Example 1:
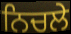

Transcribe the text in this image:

ਨਿਚਲੇ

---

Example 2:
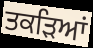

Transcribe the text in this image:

ਤਕੜਿਆਂ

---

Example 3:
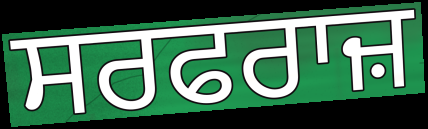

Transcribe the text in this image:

ਸਰਫਰਾਜ਼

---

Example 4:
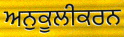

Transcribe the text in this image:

ਅਨੁਕੂਲੀਕਰਨ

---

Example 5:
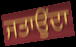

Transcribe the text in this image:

ਜਤਾਉਂਦਾ